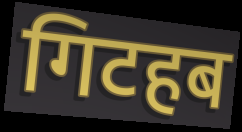
गिटहब